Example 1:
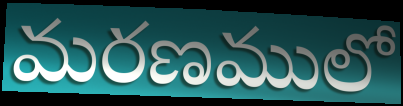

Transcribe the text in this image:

మరణములో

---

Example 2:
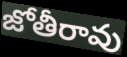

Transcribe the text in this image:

జోతీరావు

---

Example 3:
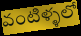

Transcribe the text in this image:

వంటిళ్ళలో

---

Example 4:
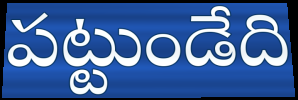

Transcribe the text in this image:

పట్టుండేది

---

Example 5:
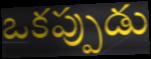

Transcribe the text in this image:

ఒకప్పుడు